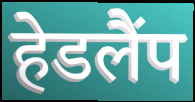
हेडलैंप